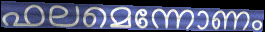
ഫലമെന്നോണം